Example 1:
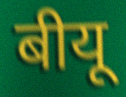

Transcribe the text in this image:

बीयू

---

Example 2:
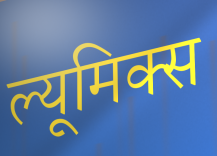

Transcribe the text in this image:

ल्यूमिक्स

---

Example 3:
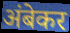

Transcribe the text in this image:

अंबेकर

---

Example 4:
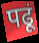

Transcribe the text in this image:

पढूं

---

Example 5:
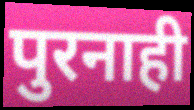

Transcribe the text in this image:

पुरनाही